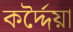
কৰ্দ্দৈয়া